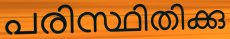
പരിസ്ഥിതിക്കു